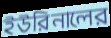
ইউরিনালের